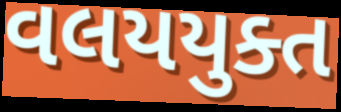
વલયયુક્ત